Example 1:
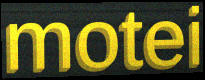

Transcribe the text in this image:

motei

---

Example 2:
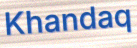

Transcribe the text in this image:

Khandaq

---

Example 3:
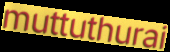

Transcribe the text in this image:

muttuthurai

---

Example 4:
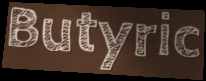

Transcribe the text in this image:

Butyric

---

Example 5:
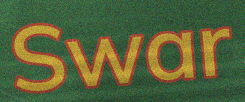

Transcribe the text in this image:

Swar